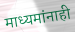
माध्यमांनाही